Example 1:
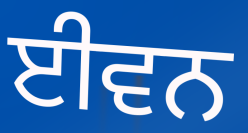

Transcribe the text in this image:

ਈਵਨ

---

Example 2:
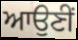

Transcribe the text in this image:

ਆਉਣੀੰ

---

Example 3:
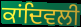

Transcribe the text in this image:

ਕਾਂਦਿਵਲੀ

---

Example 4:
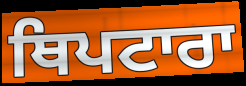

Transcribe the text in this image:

ਥਿਪਟਾਰਾ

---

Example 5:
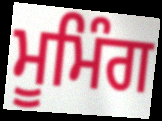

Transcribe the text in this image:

ਮੂਮਿੰਗ